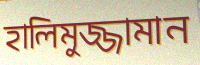
হালিমুজ্জামান